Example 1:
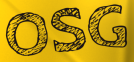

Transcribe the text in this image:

OSG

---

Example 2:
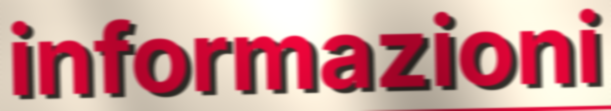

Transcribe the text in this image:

informazioni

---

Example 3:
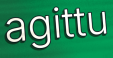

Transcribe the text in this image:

agittu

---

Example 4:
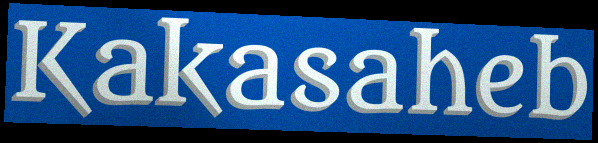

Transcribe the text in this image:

Kakasaheb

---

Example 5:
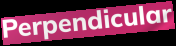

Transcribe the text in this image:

Perpendicular